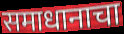
समाधानाचा